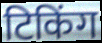
टिकिंग